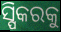
ସ୍ପିକରକୁ